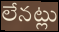
లేనట్లు